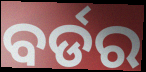
ବର୍ଡର